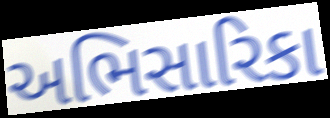
અભિસારિકા